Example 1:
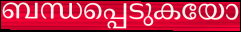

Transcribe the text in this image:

ബന്ധപ്പെടുകയോ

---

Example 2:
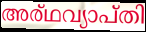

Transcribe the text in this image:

അര്ഥവ്യാപ്തി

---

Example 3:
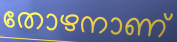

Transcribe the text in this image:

തോഴനാണ്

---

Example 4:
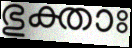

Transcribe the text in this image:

ഭുക്താഃ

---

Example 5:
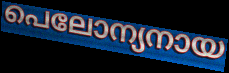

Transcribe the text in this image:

പെലോന്യനായ